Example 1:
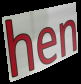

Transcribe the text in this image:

hen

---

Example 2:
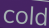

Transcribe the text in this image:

cold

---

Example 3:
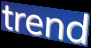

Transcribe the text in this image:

trend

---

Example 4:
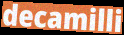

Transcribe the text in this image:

decamilli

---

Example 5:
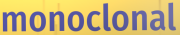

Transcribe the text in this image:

monoclonal